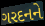
ગરદનને